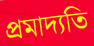
প্রমাদ্যতি